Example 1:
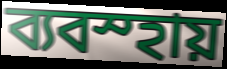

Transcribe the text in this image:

ব্যবস্হায়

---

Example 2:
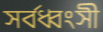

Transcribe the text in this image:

সর্বধ্বংসী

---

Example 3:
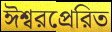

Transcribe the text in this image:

ঈশ্বরপ্রেরিত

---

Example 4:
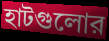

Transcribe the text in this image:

হাটগুলোর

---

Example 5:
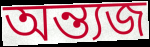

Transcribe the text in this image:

অন্ত্যজ